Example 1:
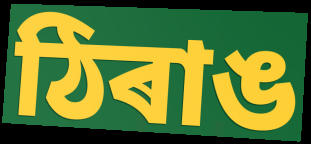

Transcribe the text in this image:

ঠিৰাঙ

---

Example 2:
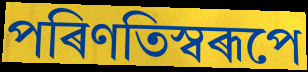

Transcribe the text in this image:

পৰিণতিস্বৰূপে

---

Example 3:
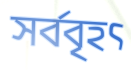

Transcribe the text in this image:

সৰ্ববৃহৎ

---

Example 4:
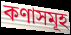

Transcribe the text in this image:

কণাসমূহ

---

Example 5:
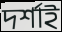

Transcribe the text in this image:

দৰ্শাই